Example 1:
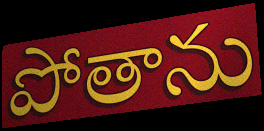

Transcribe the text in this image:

పోతాను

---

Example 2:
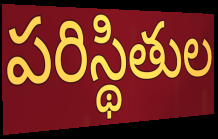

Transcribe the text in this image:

పరిస్థితుల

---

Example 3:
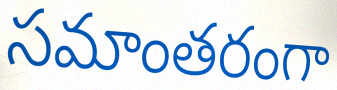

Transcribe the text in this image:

సమాంతరంగా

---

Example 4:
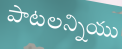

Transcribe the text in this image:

పాటలన్నియు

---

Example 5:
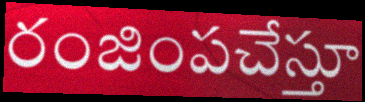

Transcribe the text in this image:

రంజింపచేస్తూ